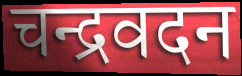
चन्द्रवदन